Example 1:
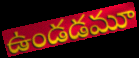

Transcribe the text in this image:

ఉండడమూ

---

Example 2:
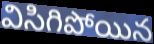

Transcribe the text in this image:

విసిగిపోయిన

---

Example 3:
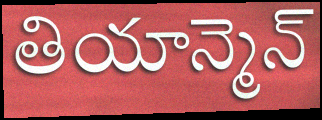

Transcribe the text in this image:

తియాన్మెన్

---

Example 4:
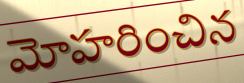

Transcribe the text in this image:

మోహరించిన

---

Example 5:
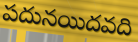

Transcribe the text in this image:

పదునయిదవది